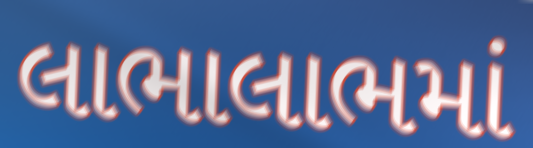
લાભાલાભમાં